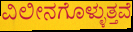
ವಿಲೀನಗೊಳ್ಳುತ್ತವೆ